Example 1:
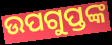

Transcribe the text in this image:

ଉପଗୁପ୍ତଙ୍କ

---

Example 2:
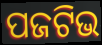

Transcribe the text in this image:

ପଜଟିଭ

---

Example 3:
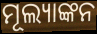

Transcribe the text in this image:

ମୂଲ୍ୟାଙ୍କନ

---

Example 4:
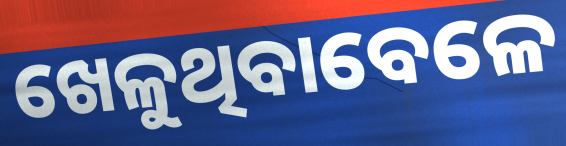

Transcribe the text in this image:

ଖେଳୁଥିବାବେଳେ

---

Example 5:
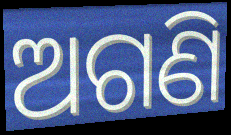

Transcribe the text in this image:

ଅଗଣି